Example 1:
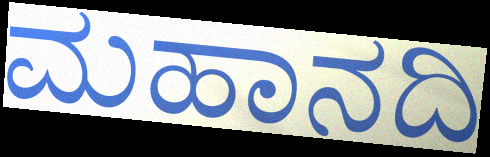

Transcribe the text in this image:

ಮಹಾನದಿ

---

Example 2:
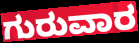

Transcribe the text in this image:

ಗುರುವಾರ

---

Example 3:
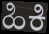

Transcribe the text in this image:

ಹಿಕಿ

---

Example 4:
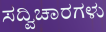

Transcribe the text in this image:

ಸದ್ವಿಚಾರಗಳು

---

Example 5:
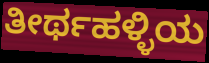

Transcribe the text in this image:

ತೀರ್ಥಹಳ್ಳಿಯ